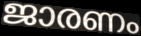
ജാരണം